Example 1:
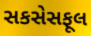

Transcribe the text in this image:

સકસેસફૂલ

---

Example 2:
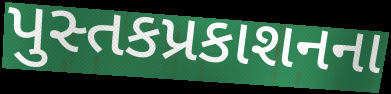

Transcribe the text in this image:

પુસ્તકપ્રકાશનના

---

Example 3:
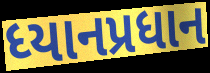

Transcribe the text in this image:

ધ્યાનપ્રધાન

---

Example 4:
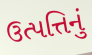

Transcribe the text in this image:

ઉત્પત્તિનું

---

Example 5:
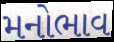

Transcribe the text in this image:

મનોભાવ